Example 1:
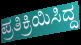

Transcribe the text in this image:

ಪ್ರತಿಕ್ರಿಯಿಸಿದ್ದ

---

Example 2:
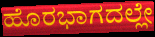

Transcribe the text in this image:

ಹೊರಭಾಗದಲ್ಲೇ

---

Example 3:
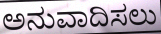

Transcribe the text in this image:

ಅನುವಾದಿಸಲು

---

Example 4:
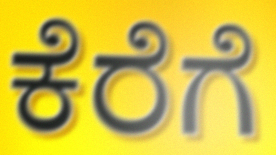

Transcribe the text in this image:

ಕೆರೆಗೆ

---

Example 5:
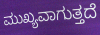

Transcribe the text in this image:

ಮುಖ್ಯವಾಗುತ್ತದೆ